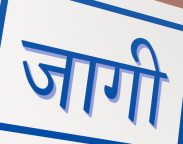
जागी